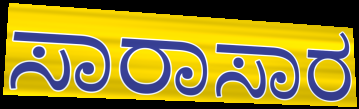
ಸಾರಾಸಾರ